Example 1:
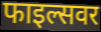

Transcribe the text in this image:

फाइल्सवर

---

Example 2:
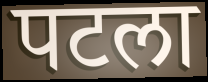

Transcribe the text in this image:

पटला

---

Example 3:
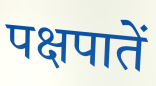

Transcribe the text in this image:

पक्षपातें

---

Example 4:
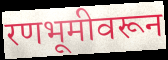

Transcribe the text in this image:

रणभूमीवरून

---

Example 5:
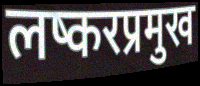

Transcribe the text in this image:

लष्करप्रमुख